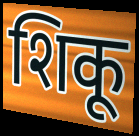
शिकू